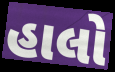
હાલો